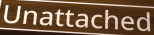
Unattached